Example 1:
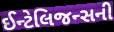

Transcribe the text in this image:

ઈન્ટેલિજન્સની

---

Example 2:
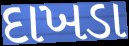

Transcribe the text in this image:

દાખડા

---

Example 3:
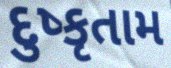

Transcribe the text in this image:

દુષ્કૃતામ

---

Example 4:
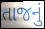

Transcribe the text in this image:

તાજનું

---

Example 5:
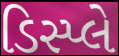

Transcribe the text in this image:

ડિસ્પ્લે